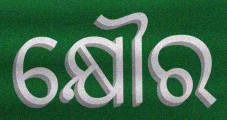
କ୍ଷୌର